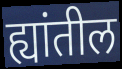
ह्यांतील